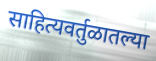
साहित्यवर्तुळातल्या